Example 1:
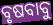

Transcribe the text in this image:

ବୃଷବାବୁ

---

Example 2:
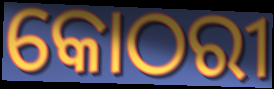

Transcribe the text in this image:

କୋଠରୀ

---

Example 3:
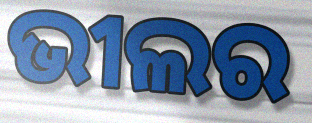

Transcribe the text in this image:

ଭୀଲର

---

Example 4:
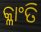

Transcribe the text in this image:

କ୍ଳାଂତି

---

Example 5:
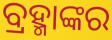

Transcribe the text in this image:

ବ୍ରହ୍ମାଙ୍କର